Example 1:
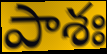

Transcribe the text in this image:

పాశః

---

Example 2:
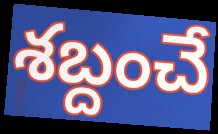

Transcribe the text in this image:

శబ్దంచే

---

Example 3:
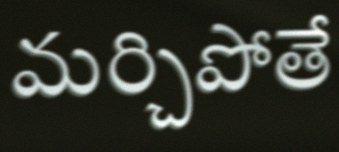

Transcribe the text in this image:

మర్చిపోతే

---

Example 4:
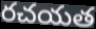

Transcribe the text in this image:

రచయత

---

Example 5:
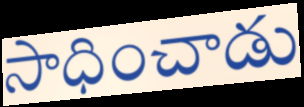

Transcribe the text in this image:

సాధించాడు